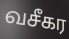
வசீகர